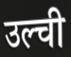
उल्ची